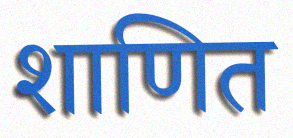
शाणित